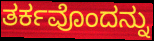
ತರ್ಕವೊಂದನ್ನು